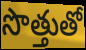
సొత్తుతో